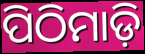
ପିଠିମାଡ଼ି